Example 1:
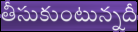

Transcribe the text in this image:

తీసుకుంటున్నదీ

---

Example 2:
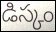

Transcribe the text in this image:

డిస్కం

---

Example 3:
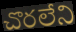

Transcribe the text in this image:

చొరలేని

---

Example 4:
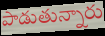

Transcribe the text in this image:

పాడుతున్నారు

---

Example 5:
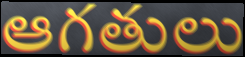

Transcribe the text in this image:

ఆగతులు